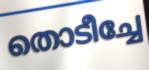
തൊടീച്ചേ